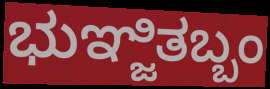
ಭುಞ್ಜಿತಬ್ಬಂ